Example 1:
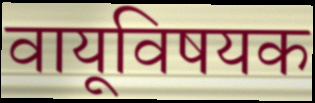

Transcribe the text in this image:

वायूविषयक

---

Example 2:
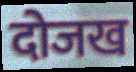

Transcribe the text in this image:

दोजख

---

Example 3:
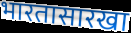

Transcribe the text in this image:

भारतासारखा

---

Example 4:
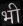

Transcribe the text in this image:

भी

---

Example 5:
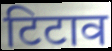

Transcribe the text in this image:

टिटाव